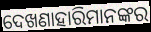
ଦେଖଣାହାରିମାନଙ୍କର